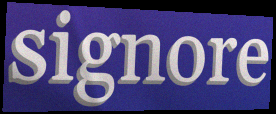
signore